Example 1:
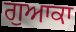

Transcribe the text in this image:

ਗੁਆਕਾ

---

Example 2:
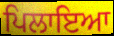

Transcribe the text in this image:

ਪਿਲਾਇਆ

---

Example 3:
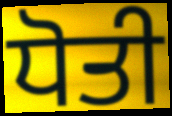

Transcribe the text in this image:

ਧੋਤੀ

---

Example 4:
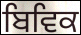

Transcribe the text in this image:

ਬਿਵਿਕ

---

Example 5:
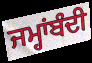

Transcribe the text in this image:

ਜਮ੍ਹਾਂਬੰਦੀ